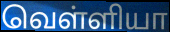
வெள்ளியா